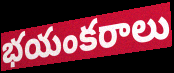
భయంకరాలు